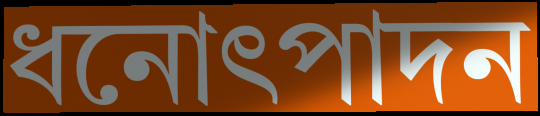
ধনোৎপাদন